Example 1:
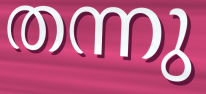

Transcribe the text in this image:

തന്നു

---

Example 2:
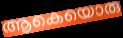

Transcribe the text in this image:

ആകെയൊരു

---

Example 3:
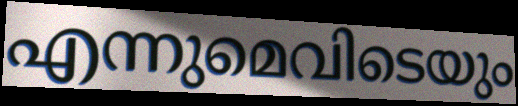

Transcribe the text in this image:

എന്നുമെവിടെയും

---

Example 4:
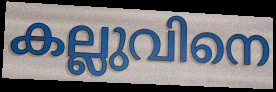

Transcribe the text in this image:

കല്ലുവിനെ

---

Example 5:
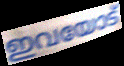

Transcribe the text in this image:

ഇവയോട്